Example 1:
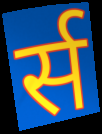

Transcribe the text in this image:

र्स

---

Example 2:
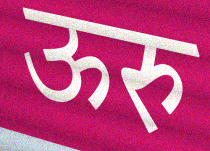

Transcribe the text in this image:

ऊरु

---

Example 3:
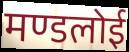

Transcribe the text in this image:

मण्डलोई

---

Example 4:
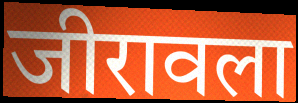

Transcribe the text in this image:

जीरावला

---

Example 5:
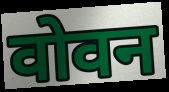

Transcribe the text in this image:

वोवन